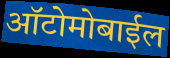
ऑटोमोबाईल